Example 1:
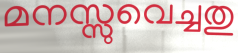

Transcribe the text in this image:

മനസ്സുവെച്ചതു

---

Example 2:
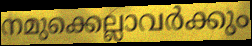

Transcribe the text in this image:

നമുക്കെല്ലാവർക്കും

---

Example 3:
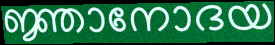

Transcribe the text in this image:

ജ്ഞാനോദയ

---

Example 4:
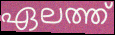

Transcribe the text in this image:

ഏലത്ത്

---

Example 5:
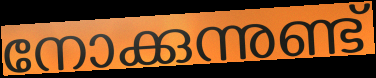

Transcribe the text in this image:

നോക്കുന്നുണ്ട്